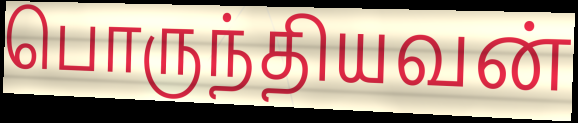
பொருந்தியவன்